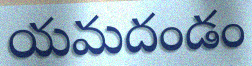
యమదండం